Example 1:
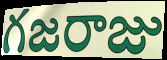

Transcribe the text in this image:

గజరాజు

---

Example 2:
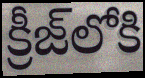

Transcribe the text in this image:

క్రీజ్‌లోకి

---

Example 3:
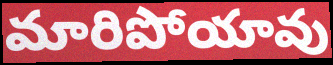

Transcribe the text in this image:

మారిపోయావు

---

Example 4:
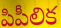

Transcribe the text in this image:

పిపీలిక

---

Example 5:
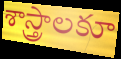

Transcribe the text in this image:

శాస్త్రాలకూ